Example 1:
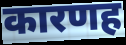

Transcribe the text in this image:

कारणह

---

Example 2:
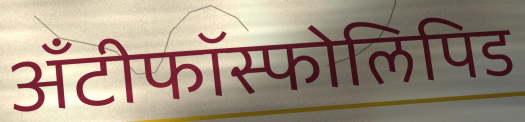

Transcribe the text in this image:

अँटीफॉस्फोलिपिड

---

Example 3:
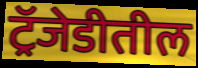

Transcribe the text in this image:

ट्रॅजेडीतील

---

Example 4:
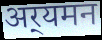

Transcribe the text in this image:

अर्यमन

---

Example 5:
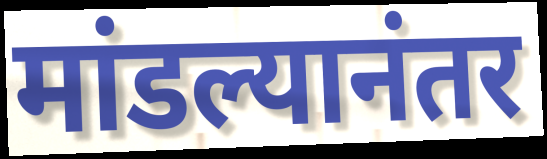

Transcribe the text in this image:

मांडल्यानंतर